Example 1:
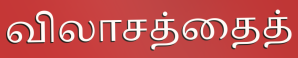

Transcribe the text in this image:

விலாசத்தைத்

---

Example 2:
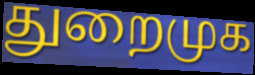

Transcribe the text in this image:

துறைமுக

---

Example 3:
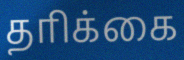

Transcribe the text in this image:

தரிக்கை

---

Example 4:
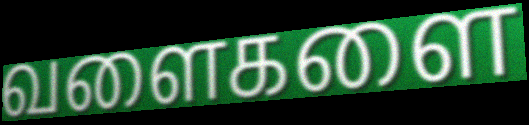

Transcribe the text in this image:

வளைகளை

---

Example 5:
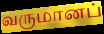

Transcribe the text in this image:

வருமானப்